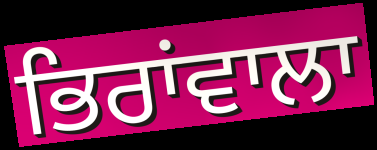
ਭਿਰਾਂਵਾਲਾ